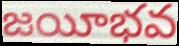
జయీభవ